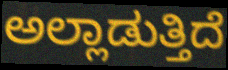
ಅಲ್ಲಾಡುತ್ತಿದೆ